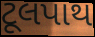
ટૂલપાથ